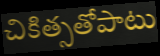
చికిత్సతోపాటు